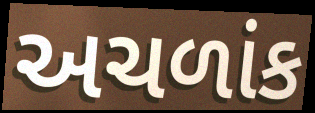
અચળાંક